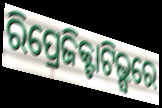
ରିପ୍ରେଜିକ୍ଟାଟିଭ୍ସରେ